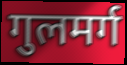
गुलमर्ग